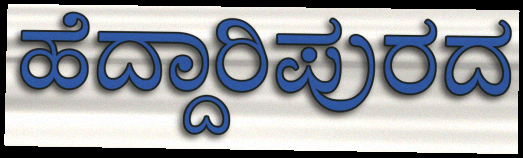
ಹೆದ್ದಾರಿಪುರದ